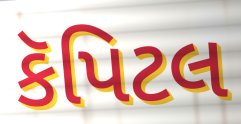
કૅપિટલ